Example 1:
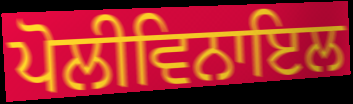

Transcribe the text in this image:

ਪੋਲੀਵਿਨਾਇਲ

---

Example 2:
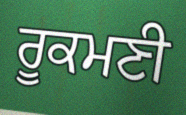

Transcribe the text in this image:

ਰੂਕਮਣੀ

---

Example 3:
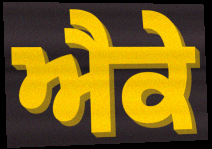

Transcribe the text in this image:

ਐਕੇ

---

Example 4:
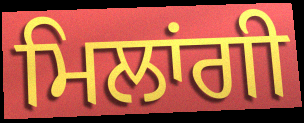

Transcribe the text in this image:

ਮਿਲਾਂਗੀ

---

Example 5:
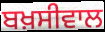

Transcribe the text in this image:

ਬਖ਼ਸੀਵਾਲ